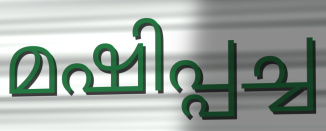
മഷിപ്പച്ച